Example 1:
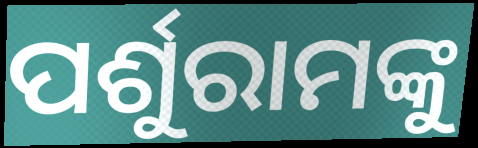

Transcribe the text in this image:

ପର୍ଶୁରାମଙ୍କୁ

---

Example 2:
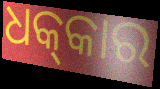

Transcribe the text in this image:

ଧକ୍‍କାର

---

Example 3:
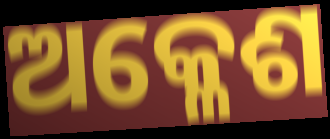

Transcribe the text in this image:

ଅକ୍ଳେଶ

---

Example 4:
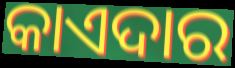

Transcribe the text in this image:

କାଏଦାର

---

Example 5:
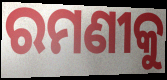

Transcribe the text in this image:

ରମଣୀକୁ